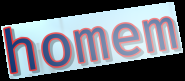
homem